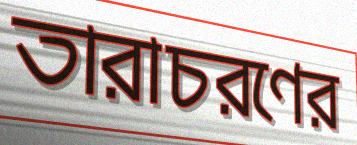
তারাচরণের